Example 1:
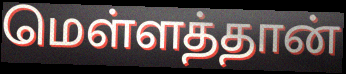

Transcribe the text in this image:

மெள்ளத்தான்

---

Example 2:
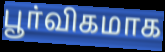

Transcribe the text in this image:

பூர்விகமாக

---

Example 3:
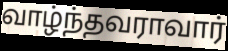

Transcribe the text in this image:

வாழ்ந்தவராவார்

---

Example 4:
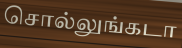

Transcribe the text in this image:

சொல்லுங்கடா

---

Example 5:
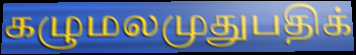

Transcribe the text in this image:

கழுமலமுதுபதிக்